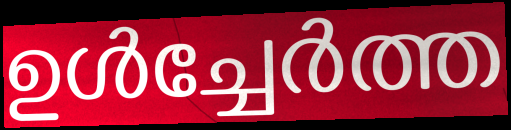
ഉൾച്ചേർത്ത